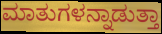
ಮಾತುಗಳನ್ನಾಡುತ್ತಾ